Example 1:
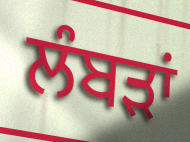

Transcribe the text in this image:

ਲੰਬੜਾਂ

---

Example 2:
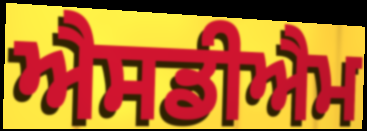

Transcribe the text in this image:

ਐਸਡੀਐਮ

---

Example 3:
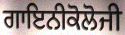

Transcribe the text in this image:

ਗਾਇਨੀਕੋਲੋਜੀ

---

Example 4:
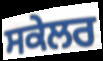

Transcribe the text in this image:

ਸਕੇਲਰ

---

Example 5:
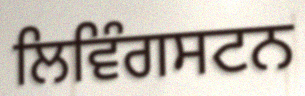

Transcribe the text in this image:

ਲਿਵਿੰਗਸਟਨ